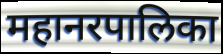
महानरपालिका